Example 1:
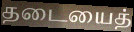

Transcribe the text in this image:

தடையைத்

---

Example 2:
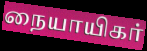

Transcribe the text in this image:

நையாயிகர்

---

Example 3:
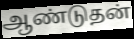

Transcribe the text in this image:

ஆண்டுதன்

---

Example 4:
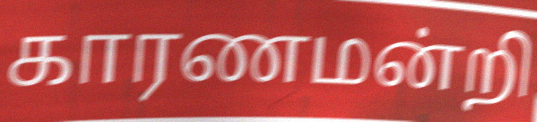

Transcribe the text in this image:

காரணமன்றி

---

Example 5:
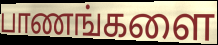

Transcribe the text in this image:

பாணங்களை